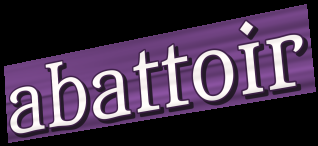
abattoir